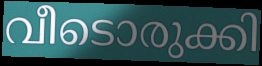
വീടൊരുക്കി